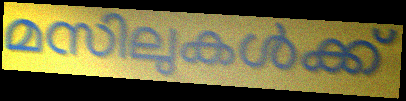
മസിലുകൾക്ക്